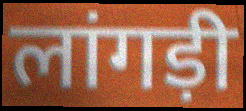
लांगड़ी